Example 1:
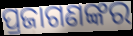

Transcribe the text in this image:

ପ୍ରଜାଗଣଙ୍କର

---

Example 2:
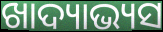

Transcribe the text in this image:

ଖାଦ୍ୟାଭ୍ୟସ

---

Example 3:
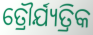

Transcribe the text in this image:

ତ୍ରୌର୍ଯ୍ୟତ୍ରିକ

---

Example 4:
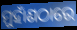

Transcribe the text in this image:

ମୁହାଁଣଠାରେ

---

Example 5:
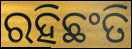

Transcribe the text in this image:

ରହିଛଂତି